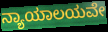
ನ್ಯಾಯಾಲಯವೇ